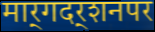
मार्गदर्शनपर